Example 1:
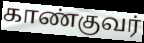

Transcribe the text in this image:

காண்குவர்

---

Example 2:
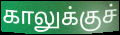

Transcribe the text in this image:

காலுக்குச்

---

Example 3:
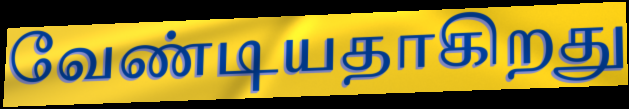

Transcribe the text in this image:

வேண்டியதாகிறது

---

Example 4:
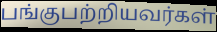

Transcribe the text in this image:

பங்குபற்றியவர்கள்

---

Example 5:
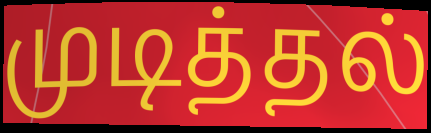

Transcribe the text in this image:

முடித்தல்